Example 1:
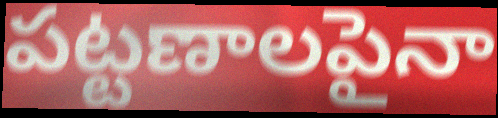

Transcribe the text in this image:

పట్టణాలపైనా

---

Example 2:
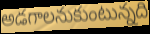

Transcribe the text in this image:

అడగాలనుకుంటున్నది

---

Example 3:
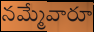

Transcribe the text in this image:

నమ్మేవారూ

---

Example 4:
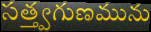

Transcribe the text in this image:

సత్త్వగుణమును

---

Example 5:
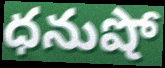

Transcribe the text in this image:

ధనుషో